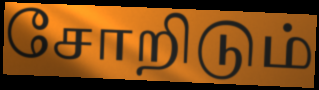
சோறிடும்